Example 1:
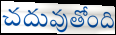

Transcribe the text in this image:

చదువుతోంది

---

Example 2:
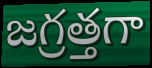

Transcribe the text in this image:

జగ్రత్తగా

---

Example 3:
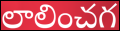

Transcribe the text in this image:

లాలించగ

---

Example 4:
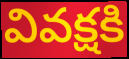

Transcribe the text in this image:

వివక్షకి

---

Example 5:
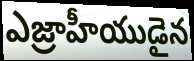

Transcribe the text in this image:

ఎజ్రాహీయుడైన